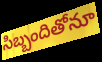
సిబ్బందితోనూ